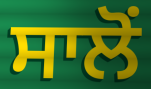
ਸਾਲੋਂ